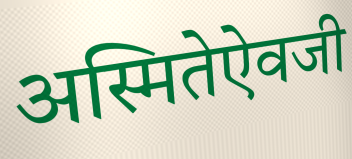
अस्मितेऐवजी